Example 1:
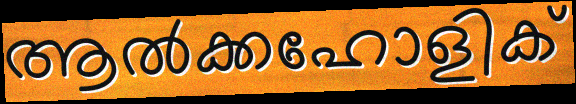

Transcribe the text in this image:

ആൽക്കഹോളിക്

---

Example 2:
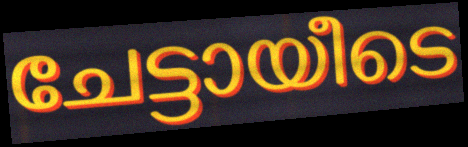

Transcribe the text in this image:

ചേട്ടായീടെ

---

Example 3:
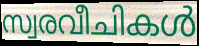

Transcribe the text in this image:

സ്വരവീചികൾ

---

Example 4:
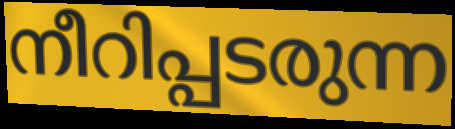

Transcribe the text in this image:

നീറിപ്പടരുന്ന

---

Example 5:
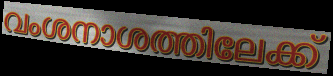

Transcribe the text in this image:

വംശനാശത്തിലേക്ക്